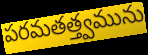
పరమతత్త్వమును